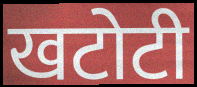
खटोटी